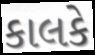
કાલકે